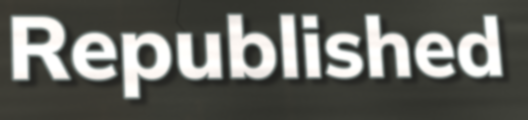
Republished